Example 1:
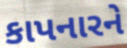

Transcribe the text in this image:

કાપનારને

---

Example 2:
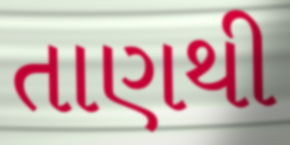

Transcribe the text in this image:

તાણથી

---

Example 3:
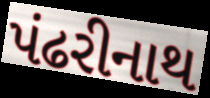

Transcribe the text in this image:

પંઢરીનાથ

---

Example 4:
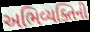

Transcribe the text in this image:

અભિવ્યક્તિની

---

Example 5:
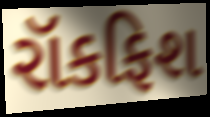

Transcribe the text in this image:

રૉકફિશ